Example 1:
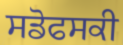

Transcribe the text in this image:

ਸਡੋਫਸਕੀ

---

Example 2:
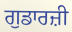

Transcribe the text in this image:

ਗੁਡਾਰਜ਼ੀ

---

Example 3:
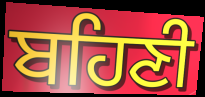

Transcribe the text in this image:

ਬਹਿਣੀ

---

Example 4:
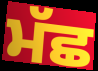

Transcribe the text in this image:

ਮੱਛ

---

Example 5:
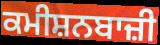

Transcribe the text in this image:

ਕਮੀਸ਼ਨਬਾਜ਼ੀ